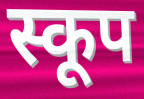
स्कूप